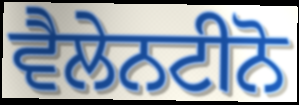
ਵੈਲੇਨਟੀਨੋ